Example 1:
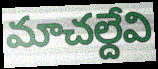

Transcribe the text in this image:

మాచల్దేవి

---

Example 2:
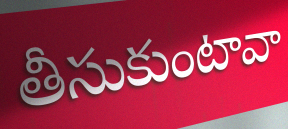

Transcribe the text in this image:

తీసుకుంటావా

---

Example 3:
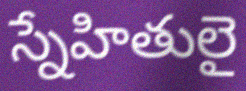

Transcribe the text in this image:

స్నేహితులై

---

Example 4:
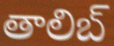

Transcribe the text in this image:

తాలిబ్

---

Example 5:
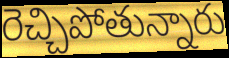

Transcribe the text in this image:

రెచ్చిపోతున్నారు